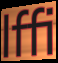
Iffi